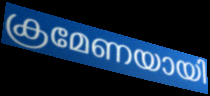
ക്രമേണയായി